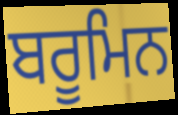
ਬਰੂਮਿਨ